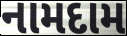
નામદામ